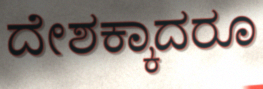
ದೇಶಕ್ಕಾದರೂ